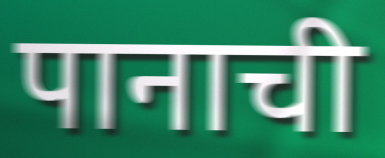
पानाची